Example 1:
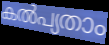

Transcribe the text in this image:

കൽപ്യതാം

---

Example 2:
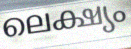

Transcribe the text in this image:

ലെക്ഷ്യം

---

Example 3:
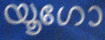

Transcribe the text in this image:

യൂഗോ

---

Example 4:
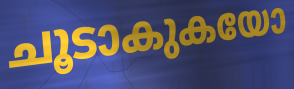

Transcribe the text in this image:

ചൂടാകുകയോ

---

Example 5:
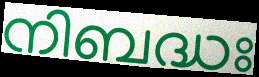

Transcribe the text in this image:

നിബദ്ധഃ